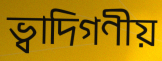
ভ্বাদিগণীয়